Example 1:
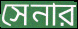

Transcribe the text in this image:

সেনার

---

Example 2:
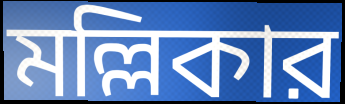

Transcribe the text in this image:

মল্লিকার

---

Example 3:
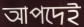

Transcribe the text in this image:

আপদেই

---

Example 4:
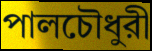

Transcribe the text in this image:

পালচৌধুরী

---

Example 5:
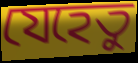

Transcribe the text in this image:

যেহেতু